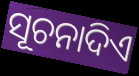
ସୂଚନାଦିଏ